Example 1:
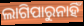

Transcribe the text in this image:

ଲାଗିପାରୁନାହିଁ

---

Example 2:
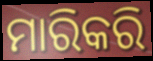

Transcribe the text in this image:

ମାରିକରି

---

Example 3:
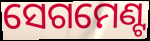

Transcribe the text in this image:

ସେଗମେଣ୍ଟ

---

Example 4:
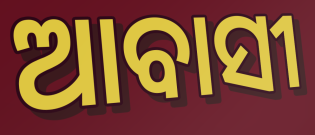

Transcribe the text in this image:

ଆବାସୀ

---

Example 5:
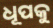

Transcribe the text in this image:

ଧୂପକୁ